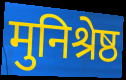
मुनिश्रेष्ठ